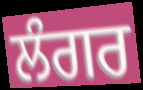
ਲੰਗਰ